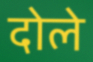
दोले